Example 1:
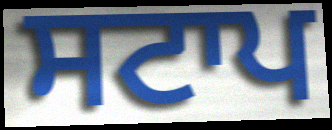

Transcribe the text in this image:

ਸਟਾਪ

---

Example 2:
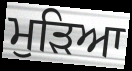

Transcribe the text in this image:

ਮੁੜਿਆ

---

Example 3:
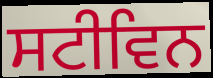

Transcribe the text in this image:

ਸਟੀਵਿਨ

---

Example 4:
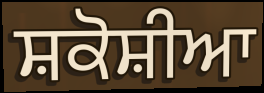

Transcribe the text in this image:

ਸ਼ਕੋਸ਼ੀਆ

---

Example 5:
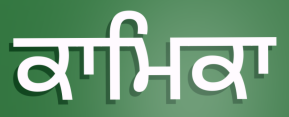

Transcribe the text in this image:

ਕਾਮਿਕਾ